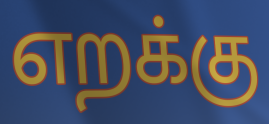
எறக்கு